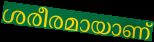
ശരീരമായാണ്